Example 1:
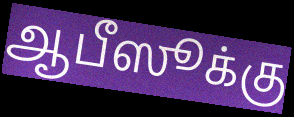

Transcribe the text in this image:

ஆபீஸூக்கு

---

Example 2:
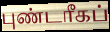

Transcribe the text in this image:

புண்டரீகப்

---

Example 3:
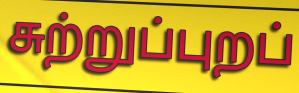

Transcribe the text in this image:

சுற்றுப்புறப்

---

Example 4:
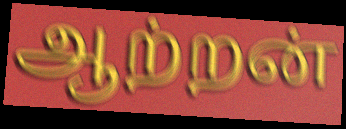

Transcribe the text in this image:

ஆற்றன்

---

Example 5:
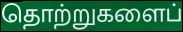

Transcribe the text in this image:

தொற்றுகளைப்